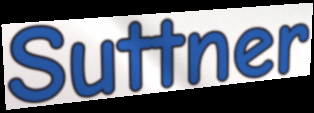
Suttner